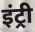
इंट्री